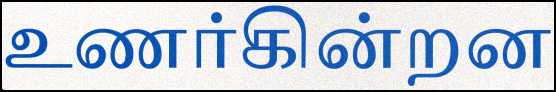
உணர்கின்றன